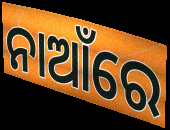
ନାଆଁରେ